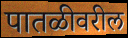
पातळीवरील